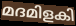
മദമിളകി